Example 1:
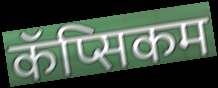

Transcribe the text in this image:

कॅप्सिकम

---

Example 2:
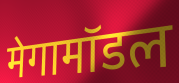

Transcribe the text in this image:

मेगामॉडल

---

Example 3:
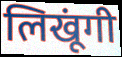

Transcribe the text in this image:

लिखूंगी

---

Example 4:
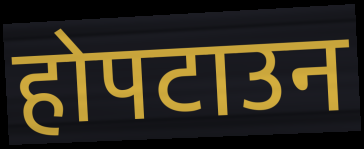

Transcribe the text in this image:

होपटाउन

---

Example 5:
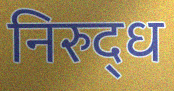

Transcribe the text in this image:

निरुद्ध